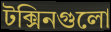
টক্সিনগুলো